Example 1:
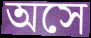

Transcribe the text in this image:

অসে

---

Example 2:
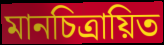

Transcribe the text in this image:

মানচিত্রায়িত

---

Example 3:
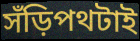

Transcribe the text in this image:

সঁড়িপথটাই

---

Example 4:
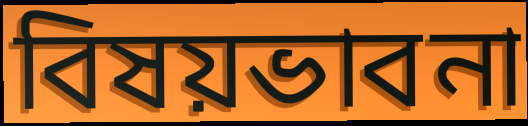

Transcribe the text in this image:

বিষয়ভাবনা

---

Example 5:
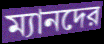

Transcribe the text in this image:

ম্যানদের